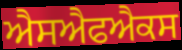
ਐਸਐਫਐਕਸ